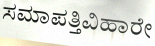
ಸಮಾಪತ್ತಿವಿಹಾರೇ